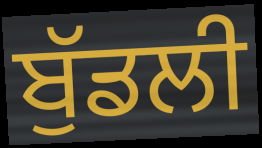
ਬੁੱਡਲੀ